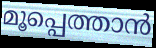
മൂപ്പെത്താൻ